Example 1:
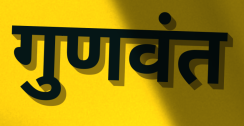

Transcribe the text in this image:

गुणवंत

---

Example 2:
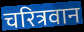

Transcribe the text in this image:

चरित्रवान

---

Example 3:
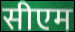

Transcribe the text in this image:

सीएम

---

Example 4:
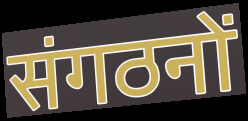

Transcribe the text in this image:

संगठनों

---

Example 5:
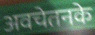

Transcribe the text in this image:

अवचेतनके